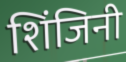
शिंजिनी